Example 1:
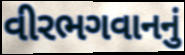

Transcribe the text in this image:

વીરભગવાનનું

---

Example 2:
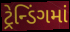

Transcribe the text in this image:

ટ્રેન્ડિંગમાં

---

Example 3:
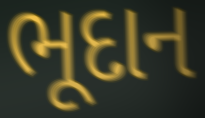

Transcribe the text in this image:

ભૂદાન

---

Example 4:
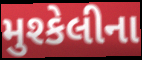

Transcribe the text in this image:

મુશ્કેલીના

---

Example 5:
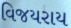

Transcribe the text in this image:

વિજયરાય